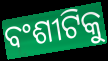
ବଂଶୀଟିକୁ